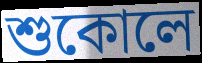
শুকোলে